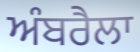
ਅੰਬਰੈਲਾ